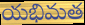
యభిమత